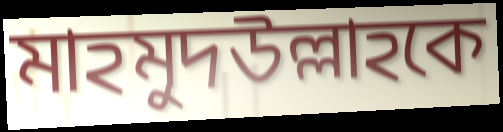
মাহমুদউল্লাহকে